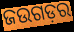
ଜଉଗଡ଼ର